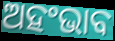
ଅହଂଭାବ